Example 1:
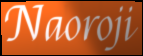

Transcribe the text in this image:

Naoroji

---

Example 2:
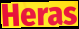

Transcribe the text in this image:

Heras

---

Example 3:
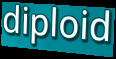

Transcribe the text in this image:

diploid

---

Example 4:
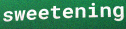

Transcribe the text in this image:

sweetening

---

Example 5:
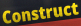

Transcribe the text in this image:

Construct